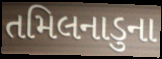
તમિલનાડુના